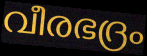
വീരഭദ്രം